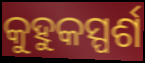
କୁହୁକସ୍ପର୍ଶ